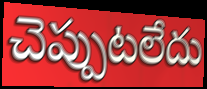
చెప్పుటలేదు